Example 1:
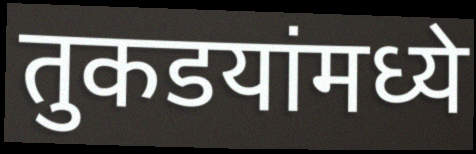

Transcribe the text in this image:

तुकडयांमध्ये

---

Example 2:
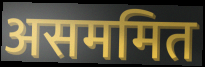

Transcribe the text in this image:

असममित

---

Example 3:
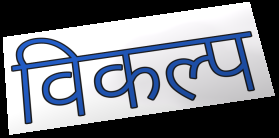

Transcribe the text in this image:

विकल्प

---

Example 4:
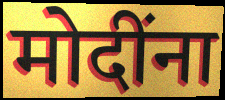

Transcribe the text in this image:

मोदींना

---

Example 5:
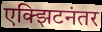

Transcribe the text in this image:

एक्झिटनंतर